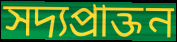
সদ্যপ্রাক্তন